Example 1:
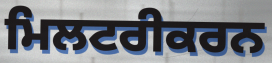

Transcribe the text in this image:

ਮਿਲਟਰੀਕਰਨ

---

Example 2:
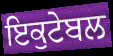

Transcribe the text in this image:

ਇਕੁਟੇਬਲ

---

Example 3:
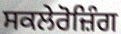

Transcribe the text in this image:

ਸਕਲੇਰੋਜ਼ਿੰਗ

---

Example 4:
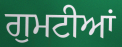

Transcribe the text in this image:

ਗੁਮਟੀਆਂ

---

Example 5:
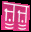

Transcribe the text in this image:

ਜ਼ੂਜ਼ੂ